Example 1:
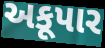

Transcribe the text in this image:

અકૂપાર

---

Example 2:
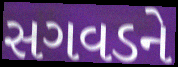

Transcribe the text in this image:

સગવડને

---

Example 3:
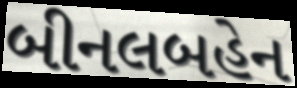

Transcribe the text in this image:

બીનલબહેન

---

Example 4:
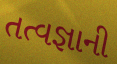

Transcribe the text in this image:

તત્વજ્ઞાની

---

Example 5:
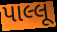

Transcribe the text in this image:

પાલ્લૂ